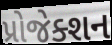
પ્રોજેક્શન